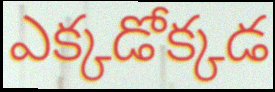
ఎక్కడోక్కడ